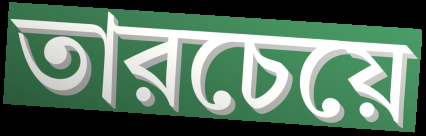
তারচেয়ে